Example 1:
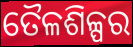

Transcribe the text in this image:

ତୈଳଶିଳ୍ପର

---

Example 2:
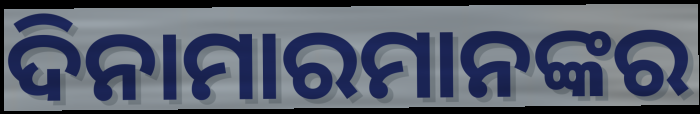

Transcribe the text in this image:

ଦିନାମାରମାନଙ୍କର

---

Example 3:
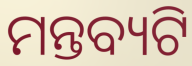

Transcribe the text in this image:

ମନ୍ତବ୍ୟଟି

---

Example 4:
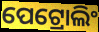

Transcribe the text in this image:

ପେଟ୍ରୋଲିଂ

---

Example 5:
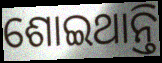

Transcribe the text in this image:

ଶୋଇଥାନ୍ତି